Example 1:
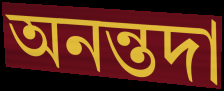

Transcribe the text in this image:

অনন্তদা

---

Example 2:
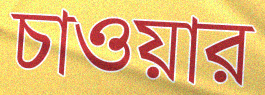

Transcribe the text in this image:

চাওয়ার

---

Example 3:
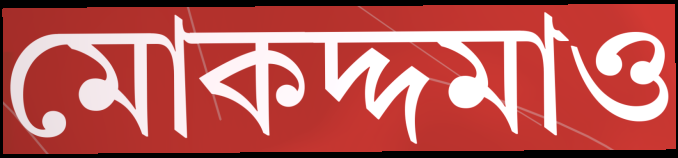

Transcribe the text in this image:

মোকদ্দমাও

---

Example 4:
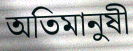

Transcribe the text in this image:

অতিমানুষী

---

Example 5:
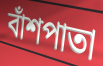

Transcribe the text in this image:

বাঁশপাতা